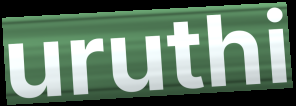
uruthi